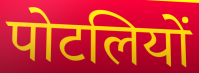
पोटलियों